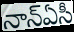
నాన్ఏసీ